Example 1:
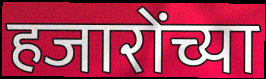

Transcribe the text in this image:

हजारोंच्या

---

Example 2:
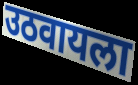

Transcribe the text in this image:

उठवायला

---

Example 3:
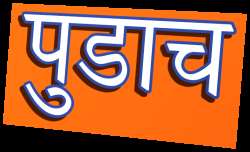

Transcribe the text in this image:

पुडाच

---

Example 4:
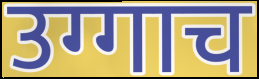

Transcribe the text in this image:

उग्गाच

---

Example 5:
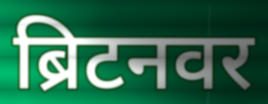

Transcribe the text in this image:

ब्रिटनवर